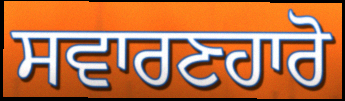
ਸਵਾਰਣਹਾਰੋ